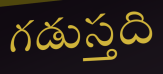
గడుస్తది